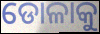
ଡୋଳାକୁ